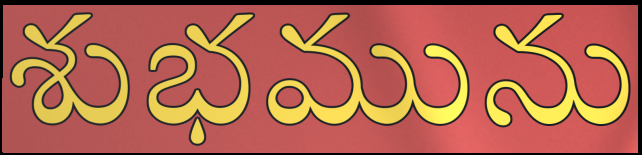
శుభమును